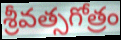
శ్రీవత్సగోత్రం